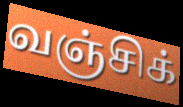
வஞ்சிக்